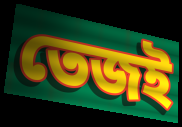
তেজই